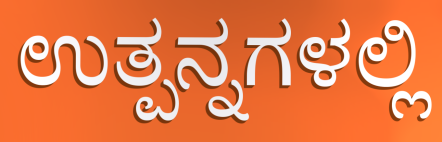
ಉತ್ಪನ್ನಗಳಲ್ಲಿ